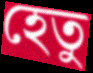
হেতু